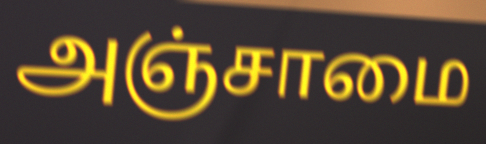
அஞ்சாமை